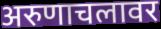
अरुणाचलावर